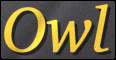
Owl